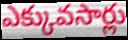
ఎక్కువసార్లు